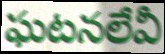
ఘటనలేవీ